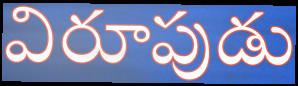
విరూపుడు